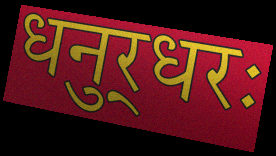
धनुर्धरः